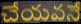
చేయవనే